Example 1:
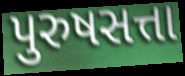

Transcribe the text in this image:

પુરુષસત્તા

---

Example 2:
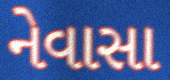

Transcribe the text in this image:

નેવાસા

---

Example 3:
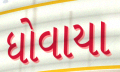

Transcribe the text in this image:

ધોવાયા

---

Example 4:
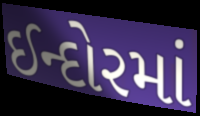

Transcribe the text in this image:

ઈન્દોરમાં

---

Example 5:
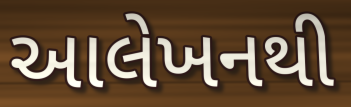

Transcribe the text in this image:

આલેખનથી